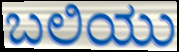
ಬಲಿಯು